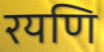
रयणि